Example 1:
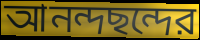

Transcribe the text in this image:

আনন্দছন্দের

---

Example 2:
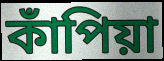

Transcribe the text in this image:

কাঁপিয়া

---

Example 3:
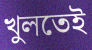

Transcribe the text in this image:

খুলতেই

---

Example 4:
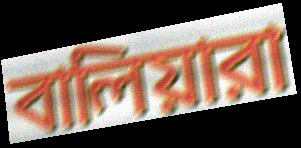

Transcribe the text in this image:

বালিয়ারা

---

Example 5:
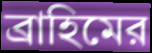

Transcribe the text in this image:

ব্রাহিমের